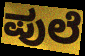
ಪುಲೆ